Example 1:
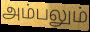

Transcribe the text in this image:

அம்பலும்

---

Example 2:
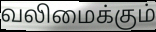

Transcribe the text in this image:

வலிமைக்கும்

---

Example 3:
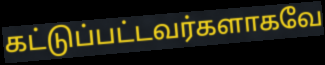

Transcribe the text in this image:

கட்டுப்பட்டவர்களாகவே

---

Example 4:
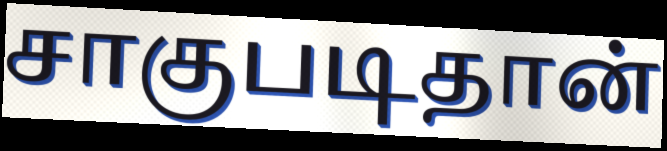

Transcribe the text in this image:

சாகுபடிதான்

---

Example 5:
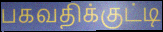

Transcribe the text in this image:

பகவதிக்குட்டி